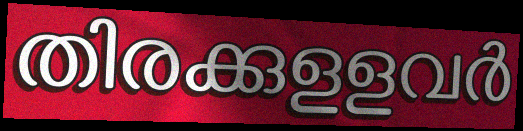
തിരക്കുളളവർ